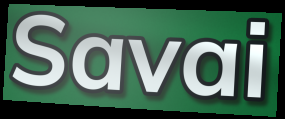
Savai